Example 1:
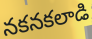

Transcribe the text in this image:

నకనకలాడి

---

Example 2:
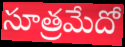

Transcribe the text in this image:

సూత్రమేదో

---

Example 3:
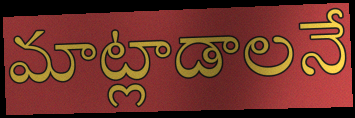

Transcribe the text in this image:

మాట్లాడాలనే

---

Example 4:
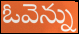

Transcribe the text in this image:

ఓవెన్ను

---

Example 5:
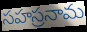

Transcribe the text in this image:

సహస్రనామ